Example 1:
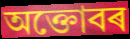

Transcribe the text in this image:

অক্তোবৰ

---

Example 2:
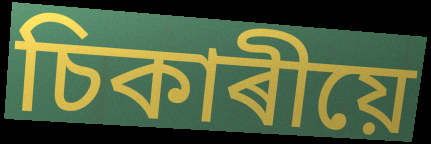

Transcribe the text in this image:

চিকাৰীয়ে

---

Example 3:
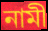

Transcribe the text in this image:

নামী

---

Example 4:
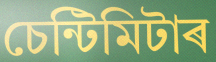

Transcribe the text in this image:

চেন্টিমিটাৰ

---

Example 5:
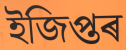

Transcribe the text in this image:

ইজিপ্তৰ